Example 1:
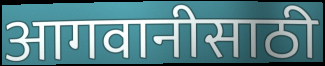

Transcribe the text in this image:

आगवानीसाठी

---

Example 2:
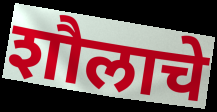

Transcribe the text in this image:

शौलाचे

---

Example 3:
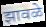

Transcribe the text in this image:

झावळे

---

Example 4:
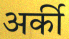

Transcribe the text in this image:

अर्की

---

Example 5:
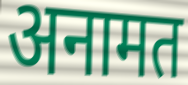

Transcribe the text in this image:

अनामत